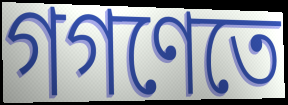
গগণেতে